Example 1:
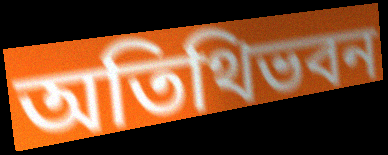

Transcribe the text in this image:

অতিথিভবন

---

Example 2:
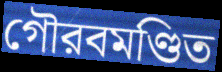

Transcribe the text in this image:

গৌরবমণ্ডিত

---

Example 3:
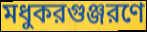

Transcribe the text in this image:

মধুকরগুঞ্জরণে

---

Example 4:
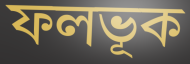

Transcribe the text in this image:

ফলভূক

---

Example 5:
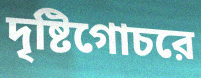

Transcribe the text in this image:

দৃষ্টিগোচরে